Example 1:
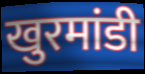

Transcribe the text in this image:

खुरमांडी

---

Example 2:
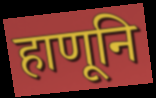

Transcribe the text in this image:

हाणूनि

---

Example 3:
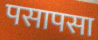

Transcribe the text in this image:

पसापसा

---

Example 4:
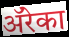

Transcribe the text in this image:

ॲरेका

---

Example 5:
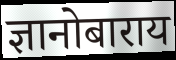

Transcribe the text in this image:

ज्ञानोबाराय